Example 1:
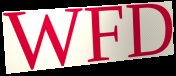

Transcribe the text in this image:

WFD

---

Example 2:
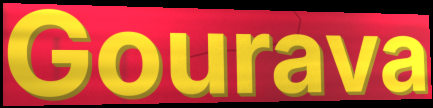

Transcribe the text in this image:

Gourava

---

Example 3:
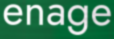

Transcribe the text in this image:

enage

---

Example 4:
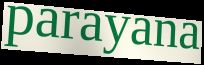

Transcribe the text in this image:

parayana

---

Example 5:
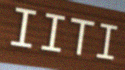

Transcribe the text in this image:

IITI